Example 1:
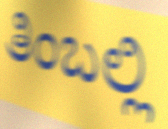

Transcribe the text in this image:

ತಿಂಬಲ್ಲಿ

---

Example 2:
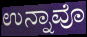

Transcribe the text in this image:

ಉನ್ನಾವೊ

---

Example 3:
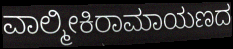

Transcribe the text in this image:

ವಾಲ್ಮೀಕಿರಾಮಾಯಣದ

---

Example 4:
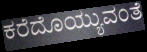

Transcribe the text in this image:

ಕರೆದೊಯ್ಯುವಂತೆ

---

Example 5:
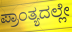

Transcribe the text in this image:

ಪ್ರಾಂತ್ಯದಲ್ಲೇ